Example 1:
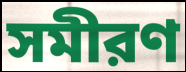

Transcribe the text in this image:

সমীরণ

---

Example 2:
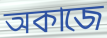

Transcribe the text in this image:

অকাজে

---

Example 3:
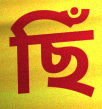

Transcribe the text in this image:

ছিঁ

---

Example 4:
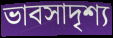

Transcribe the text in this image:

ভাবসাদৃশ্য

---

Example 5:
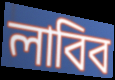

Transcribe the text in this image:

লাবিব